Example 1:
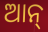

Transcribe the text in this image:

ଆନ୍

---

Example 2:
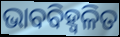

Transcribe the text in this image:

ଭାବବିହ୍ବଳିତ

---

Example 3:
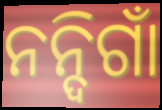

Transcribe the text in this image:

ନନ୍ଦିଗାଁ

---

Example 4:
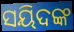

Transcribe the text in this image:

ସୟିଦଙ୍କ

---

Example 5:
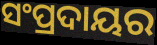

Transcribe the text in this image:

ସଂପ୍ରଦାୟର